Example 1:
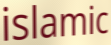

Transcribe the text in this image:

islamic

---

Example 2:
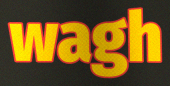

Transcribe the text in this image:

wagh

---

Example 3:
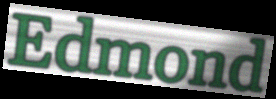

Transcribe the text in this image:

Edmond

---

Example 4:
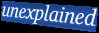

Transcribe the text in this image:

unexplained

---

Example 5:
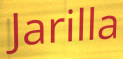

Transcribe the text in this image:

Jarilla